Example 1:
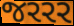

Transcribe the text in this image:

જરરર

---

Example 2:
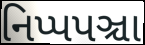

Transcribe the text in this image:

નિપ્પપઞ્ચા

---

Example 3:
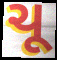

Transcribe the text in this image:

ચૂ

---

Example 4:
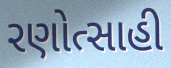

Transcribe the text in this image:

રણોત્સાહી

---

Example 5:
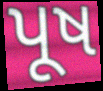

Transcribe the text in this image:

પૂષ